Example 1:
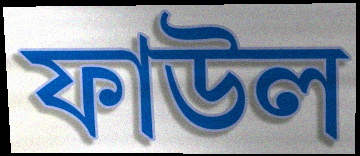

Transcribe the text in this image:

ফাউল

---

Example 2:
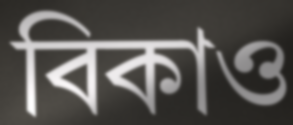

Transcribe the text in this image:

বিকাও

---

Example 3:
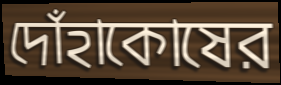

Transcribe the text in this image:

দোঁহাকোষের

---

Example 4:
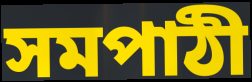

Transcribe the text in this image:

সমপাঠী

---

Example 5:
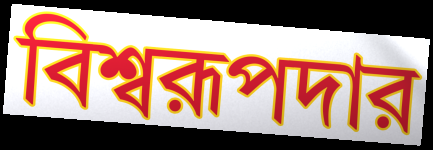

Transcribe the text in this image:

বিশ্বরূপদার